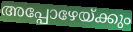
അപ്പോഴേയ്ക്കും